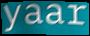
yaar